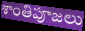
శాంతిపూజలు